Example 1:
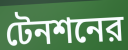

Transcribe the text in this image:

টেনশনের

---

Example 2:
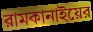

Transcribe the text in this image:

রামকানাইয়ের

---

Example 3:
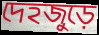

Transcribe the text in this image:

দেহজুড়ে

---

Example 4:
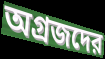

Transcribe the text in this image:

অগ্রজদের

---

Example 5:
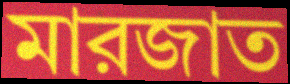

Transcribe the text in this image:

মারজাত